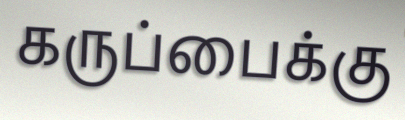
கருப்பைக்கு